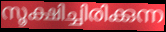
സൂക്ഷിച്ചിരിക്കുന്ന